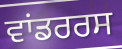
ਵਾਂਡਰਰਸ